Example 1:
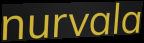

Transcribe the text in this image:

nurvala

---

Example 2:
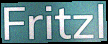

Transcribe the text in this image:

Fritzl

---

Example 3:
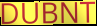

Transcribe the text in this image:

DUBNT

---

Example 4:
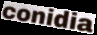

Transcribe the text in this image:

conidia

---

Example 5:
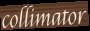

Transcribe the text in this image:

collimator